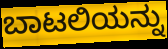
ಬಾಟಲಿಯನ್ನು